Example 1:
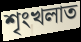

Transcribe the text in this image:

শৃংখলাত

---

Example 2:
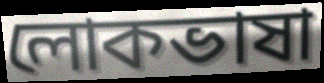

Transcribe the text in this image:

লোকভাষা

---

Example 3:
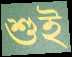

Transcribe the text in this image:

শুই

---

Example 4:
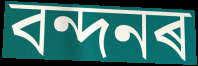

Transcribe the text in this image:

বন্দনৰ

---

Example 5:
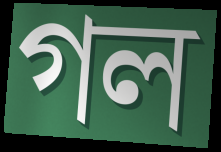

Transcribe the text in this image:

গল